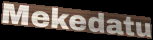
Mekedatu